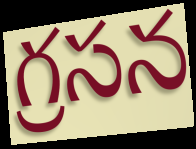
గ్రసన